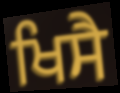
ਖਿਸੈ